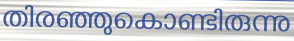
തിരഞ്ഞുകൊണ്ടിരുന്നു